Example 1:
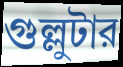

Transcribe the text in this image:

গুল্লুটার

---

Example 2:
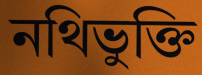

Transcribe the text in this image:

নথিভুক্তি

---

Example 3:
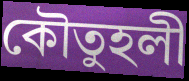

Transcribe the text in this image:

কৌতুহলী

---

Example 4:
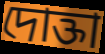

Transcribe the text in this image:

দোক্তা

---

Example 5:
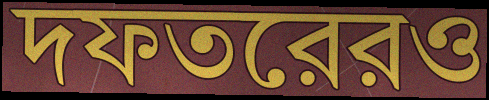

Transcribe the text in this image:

দফতরেরও